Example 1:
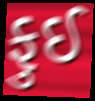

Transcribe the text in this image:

ફુઈ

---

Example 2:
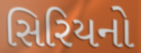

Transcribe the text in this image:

સિરિયનો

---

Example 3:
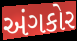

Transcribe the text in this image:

અંગકોર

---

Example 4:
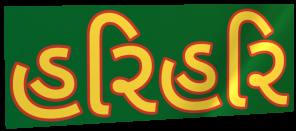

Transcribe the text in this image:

હરિહરિ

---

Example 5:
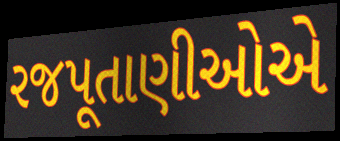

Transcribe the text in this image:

રજપૂતાણીઓએ